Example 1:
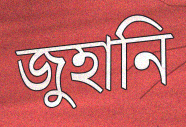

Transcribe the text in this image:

জুহানি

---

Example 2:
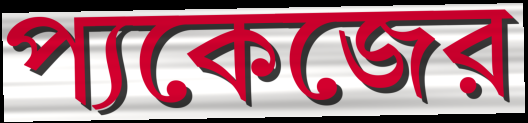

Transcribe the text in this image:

প্যকেজের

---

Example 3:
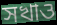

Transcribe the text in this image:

সখাও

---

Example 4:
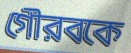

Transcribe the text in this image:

গৌরবকে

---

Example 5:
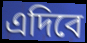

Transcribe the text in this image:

এদিবে